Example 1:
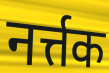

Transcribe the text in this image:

नर्त्तक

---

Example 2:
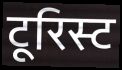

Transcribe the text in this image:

टूरिस्ट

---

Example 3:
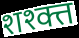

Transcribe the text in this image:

शश्क्त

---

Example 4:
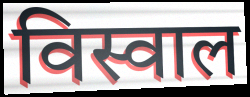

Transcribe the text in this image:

विस्वाल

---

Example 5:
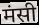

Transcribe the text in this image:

मंसी